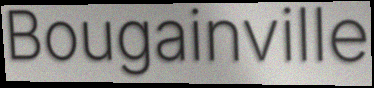
Bougainville